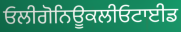
ਓਲੀਗੋਨਿਊਕਲੀਓਟਾਈਡ